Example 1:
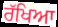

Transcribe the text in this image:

ਰੱਖਿਆ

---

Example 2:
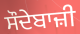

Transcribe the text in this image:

ਸੌਦੇਬਾਜ਼ੀ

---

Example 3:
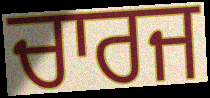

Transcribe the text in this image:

ਚਾਰਜ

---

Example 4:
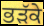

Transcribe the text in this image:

ਭੜੱਕੇ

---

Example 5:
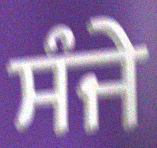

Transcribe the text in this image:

ਸੰਜੇ